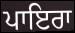
ਪਾਇਰਾ